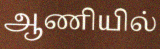
ஆணியில்